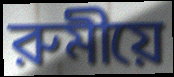
ৰুমীয়ে